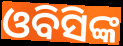
ଓବିସିଙ୍କ